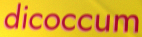
dicoccum